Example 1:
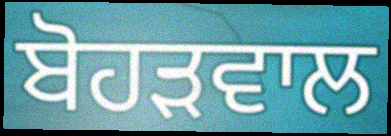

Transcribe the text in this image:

ਬੋਹੜਵਾਲ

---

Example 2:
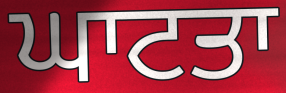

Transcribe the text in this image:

ਘਾਟਤਾ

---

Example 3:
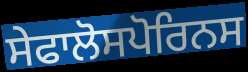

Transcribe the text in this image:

ਸੇਫਾਲੋਸਪੋਰਿਨਸ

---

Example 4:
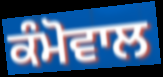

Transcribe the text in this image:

ਕੰਮੋਵਾਲ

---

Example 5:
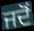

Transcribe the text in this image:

ਜਦੋਂ